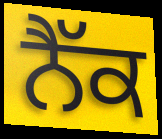
ਨੈੱਕ